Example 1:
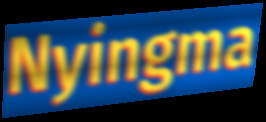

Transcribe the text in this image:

Nyingma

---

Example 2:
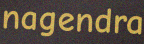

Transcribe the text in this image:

nagendra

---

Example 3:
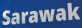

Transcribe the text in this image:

Sarawak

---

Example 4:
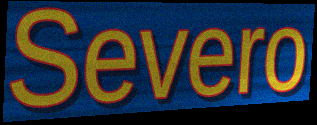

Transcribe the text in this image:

Severo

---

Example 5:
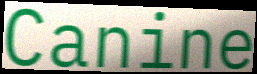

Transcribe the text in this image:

Canine